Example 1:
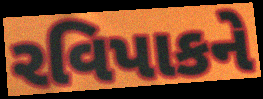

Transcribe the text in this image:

રવિપાકને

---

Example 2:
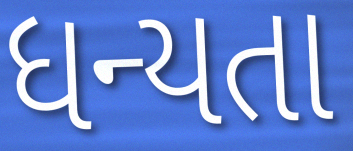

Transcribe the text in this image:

ધન્યતા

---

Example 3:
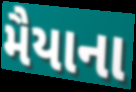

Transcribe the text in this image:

મૈયાના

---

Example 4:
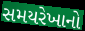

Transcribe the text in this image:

સમયરેખાનો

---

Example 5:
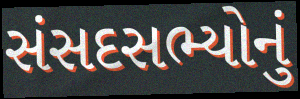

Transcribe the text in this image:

સંસદસભ્યોનું